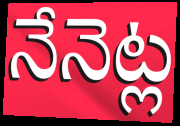
నేనెట్ల